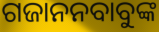
ଗଜାନନବାବୁଙ୍କ